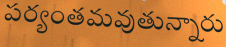
పర్యంతమవుతున్నారు